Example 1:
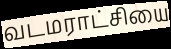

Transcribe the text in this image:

வடமராட்சியை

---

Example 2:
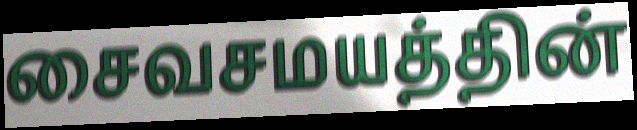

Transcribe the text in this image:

சைவசமயத்தின்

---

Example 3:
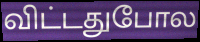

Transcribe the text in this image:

விட்டதுபோல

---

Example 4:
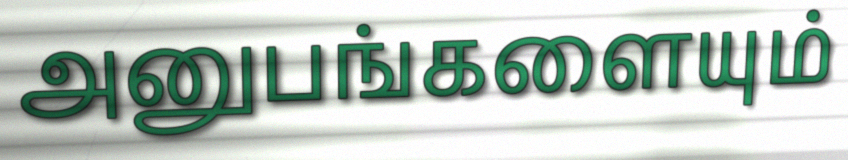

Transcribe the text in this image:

அனுபங்களையும்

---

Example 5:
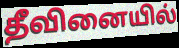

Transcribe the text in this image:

தீவினையில்